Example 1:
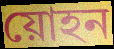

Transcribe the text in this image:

য়োহন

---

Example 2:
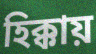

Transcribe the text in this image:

হিক্কায়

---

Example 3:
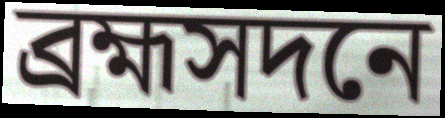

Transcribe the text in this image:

ব্রহ্মসদনে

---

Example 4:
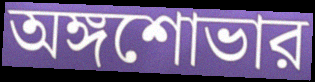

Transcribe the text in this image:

অঙ্গশোভার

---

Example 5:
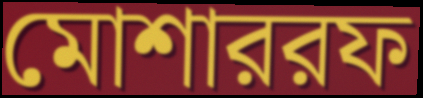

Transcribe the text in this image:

মোশাররফ